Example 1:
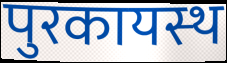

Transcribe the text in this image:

पुरकायस्थ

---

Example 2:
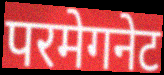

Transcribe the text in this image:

परमेगनेट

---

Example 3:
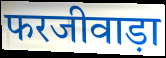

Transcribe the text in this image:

फरजीवाड़ा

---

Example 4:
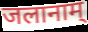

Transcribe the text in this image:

जलानाम्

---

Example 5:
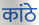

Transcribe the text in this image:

कांठे